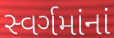
સ્વર્ગમાંનાં